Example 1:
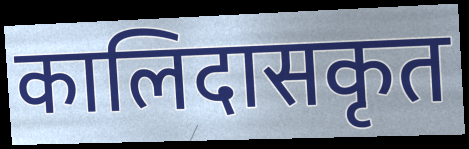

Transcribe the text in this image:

कालिदासकृत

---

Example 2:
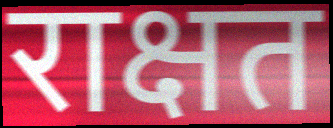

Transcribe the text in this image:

राक्षत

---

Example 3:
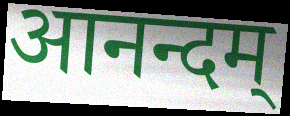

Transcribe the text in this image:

आनन्दम्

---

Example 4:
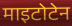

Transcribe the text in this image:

माइटोटेन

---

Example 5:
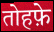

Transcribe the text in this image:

तोहफ़े